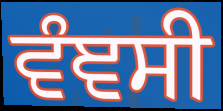
ਵੰਞਸੀ